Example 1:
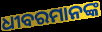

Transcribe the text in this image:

ଧୀବରମାନଙ୍କ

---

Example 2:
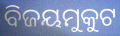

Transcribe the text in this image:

ବିଜୟମୁକୁଟ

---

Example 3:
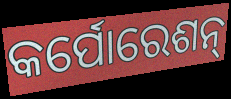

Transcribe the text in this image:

କର୍ପୋରେଶନ୍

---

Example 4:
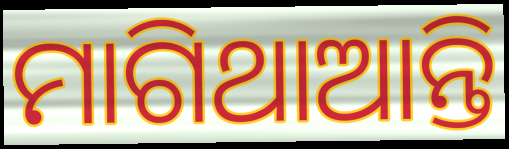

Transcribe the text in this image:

ମାଗିଥାଆନ୍ତି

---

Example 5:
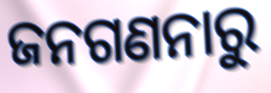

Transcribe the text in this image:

ଜନଗଣନାରୁ